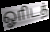
ஓரிடத்